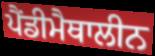
ਪੈਂਡੀਮੈਥਾਲੀਨ